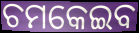
ଚମକେଇବ